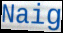
Naig